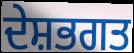
ਦੇਸ਼ਭਗਤ